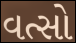
વત્સો